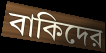
বাকিদের